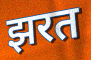
झरत